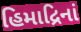
હિમાદ્રિનાં